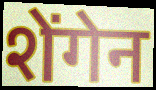
शेंगेन